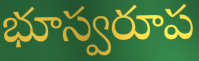
భూస్వరూప